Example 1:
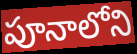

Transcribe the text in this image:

పూనాలోని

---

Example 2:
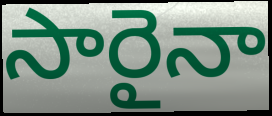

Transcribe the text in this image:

సారైనా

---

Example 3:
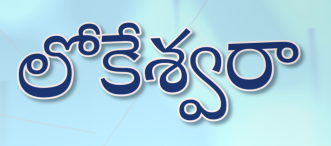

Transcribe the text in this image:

లోకేశ్వరా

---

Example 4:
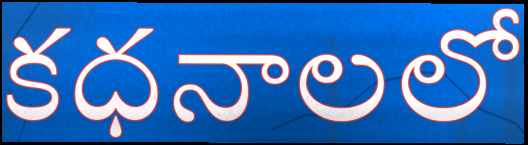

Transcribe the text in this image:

కధనాలలో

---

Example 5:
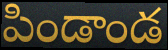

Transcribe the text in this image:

పిండాండ